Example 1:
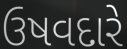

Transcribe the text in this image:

ઉષવદારે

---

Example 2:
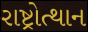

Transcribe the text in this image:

રાષ્ટ્રોત્થાન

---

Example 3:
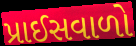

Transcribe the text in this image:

પ્રાઈસવાળો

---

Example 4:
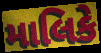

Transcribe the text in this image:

માલિકે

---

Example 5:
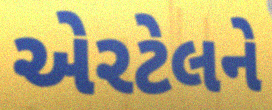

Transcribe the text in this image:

એરટેલને